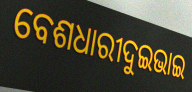
ବେଶଧାରୀଦୁଇଭାଇ